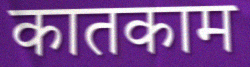
कातकाम